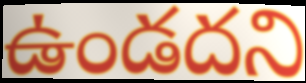
ఉండదని